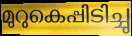
മുറുകെപ്പിടിച്ചു